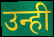
उन्ही